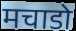
मचाडो